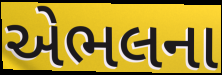
એભલના